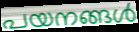
പയനങ്ങൾ